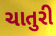
ચાતુરી